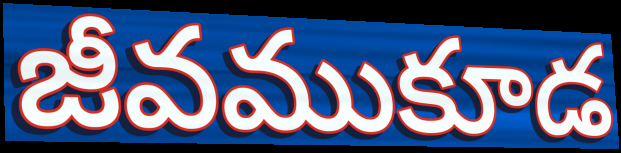
జీవముకూడ